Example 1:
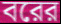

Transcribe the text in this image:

বরের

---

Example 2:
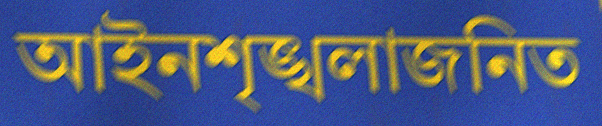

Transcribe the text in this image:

আইনশৃঙ্খলাজনিত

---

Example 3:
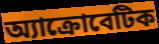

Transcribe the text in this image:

অ্যাক্রোবেটিক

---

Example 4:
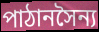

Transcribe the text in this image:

পাঠানসৈন্য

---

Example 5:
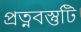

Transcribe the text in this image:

প্রত্নবস্তুটি